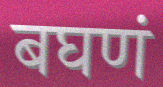
बघणं